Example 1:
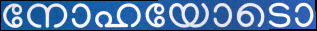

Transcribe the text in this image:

നോഹയോടൊ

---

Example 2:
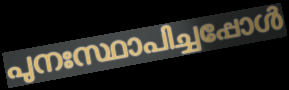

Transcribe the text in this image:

പുനഃസ്ഥാപിച്ചപ്പോൾ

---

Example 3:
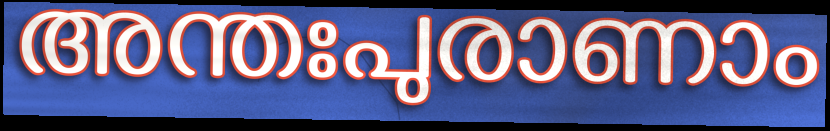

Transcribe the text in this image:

അന്തഃപുരാണാം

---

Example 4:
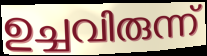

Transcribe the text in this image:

ഉച്ചവിരുന്ന്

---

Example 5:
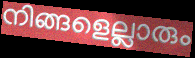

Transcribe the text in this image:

നിങ്ങളെല്ലാരും